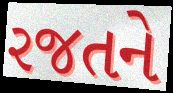
રજતને